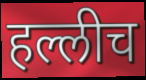
हल्लीच